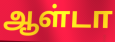
ஆள்டா